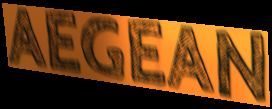
AEGEAN